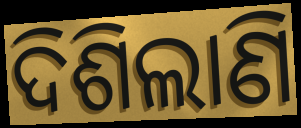
ଦିଶିଲାଣି